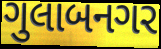
ગુલાબનગર